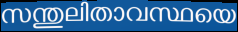
സന്തുലിതാവസ്ഥയെ